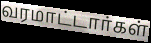
வரமாட்டார்கள்